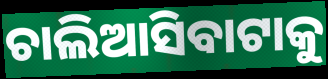
ଚାଲିଆସିବାଟାକୁ